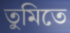
তুমিতে